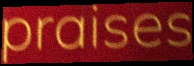
praises